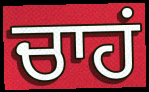
ਚਾਹਂ